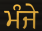
ਮੰਜੇ